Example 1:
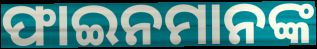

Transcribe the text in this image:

ଫାଇନମାନଙ୍କ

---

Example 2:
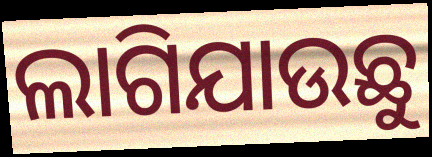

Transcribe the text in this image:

ଲାଗିଯାଉଛୁ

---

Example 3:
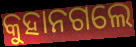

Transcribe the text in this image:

କୁହାନଗଲେ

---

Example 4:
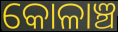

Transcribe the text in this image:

କୋଳାଞ୍ଚ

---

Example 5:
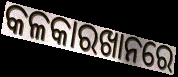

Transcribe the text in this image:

କଳକାରଖାନରେ